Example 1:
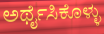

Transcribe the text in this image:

ಅರ್ಥೈಸಿಕೊಳ್ಳು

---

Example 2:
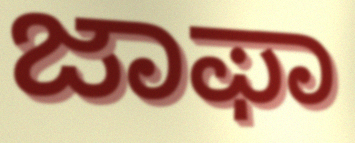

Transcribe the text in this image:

ಜಾಫಾ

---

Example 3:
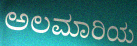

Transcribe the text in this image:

ಅಲಮಾರಿಯ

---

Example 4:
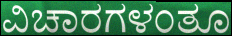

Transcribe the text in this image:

ವಿಚಾರಗಳಂತೂ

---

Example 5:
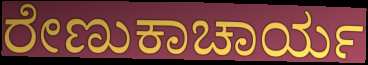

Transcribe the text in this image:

ರೇಣುಕಾಚಾರ್ಯ